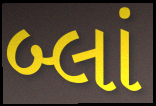
બ્લાં